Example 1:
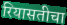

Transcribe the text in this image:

रियासतीचा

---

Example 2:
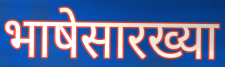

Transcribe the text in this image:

भाषेसारख्या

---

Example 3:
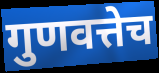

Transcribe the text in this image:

गुणवत्तेच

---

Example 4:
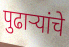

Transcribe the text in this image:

पुढाऱ्यांचे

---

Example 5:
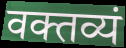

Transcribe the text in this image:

वक्तव्यं